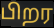
பிறர